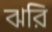
ঝরি